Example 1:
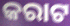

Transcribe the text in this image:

କରାଟ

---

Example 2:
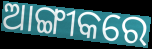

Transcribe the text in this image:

ଆଙ୍ଗୀକରେ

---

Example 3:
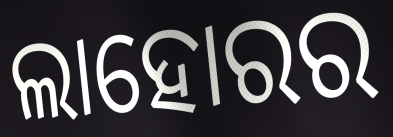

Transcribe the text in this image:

ଲାହୋରର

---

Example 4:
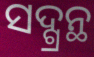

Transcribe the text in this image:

ସଦ୍ଗ୍ରନ୍ଥ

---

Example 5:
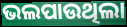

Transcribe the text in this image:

ଭଲପାଉଥିଲା